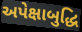
અપેક્ષાબુદ્ધિ